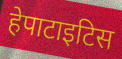
हेपाटाइटिस